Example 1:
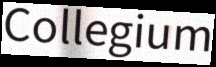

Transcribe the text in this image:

Collegium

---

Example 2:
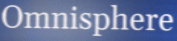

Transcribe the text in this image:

Omnisphere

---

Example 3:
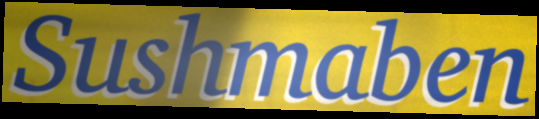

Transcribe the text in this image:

Sushmaben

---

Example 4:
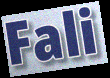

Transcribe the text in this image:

Fali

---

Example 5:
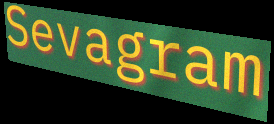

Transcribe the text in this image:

Sevagram